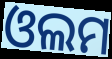
ଓଲମ